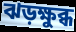
ঝড়ক্ষুব্ধ